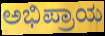
ಅಭಿಪ್ರಾಯ